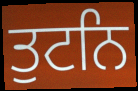
ਤੁਟਨਿ